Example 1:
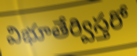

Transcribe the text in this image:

విభూతేర్విస్తరో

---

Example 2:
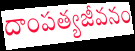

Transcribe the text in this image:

దాంపత్యజీవనం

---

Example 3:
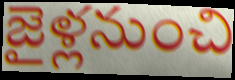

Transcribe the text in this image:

జైళ్లనుంచి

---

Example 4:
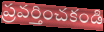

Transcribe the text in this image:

ప్రవర్తించకండి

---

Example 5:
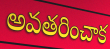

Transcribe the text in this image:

అవతరించాక